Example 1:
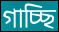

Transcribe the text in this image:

গাচ্ছি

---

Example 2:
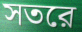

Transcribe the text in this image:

সতরে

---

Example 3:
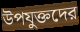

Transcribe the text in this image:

উপযুক্তদের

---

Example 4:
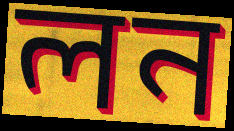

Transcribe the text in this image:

লন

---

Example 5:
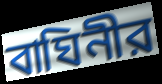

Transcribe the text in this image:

বাঘিনীর